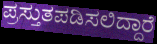
ಪ್ರಸ್ತುತಪಡಿಸಲಿದ್ದಾರೆ